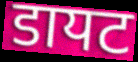
डायट